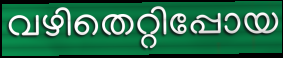
വഴിതെറ്റിപ്പോയ